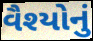
વૈશ્યોનું